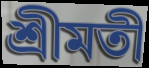
শ্রীমতী